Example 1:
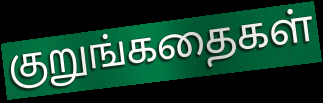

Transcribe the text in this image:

குறுங்கதைகள்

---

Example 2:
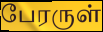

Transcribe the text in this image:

பேரருள்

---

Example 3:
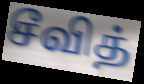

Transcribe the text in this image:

சீவித்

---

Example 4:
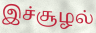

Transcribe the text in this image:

இச்சூழல்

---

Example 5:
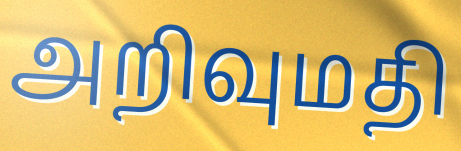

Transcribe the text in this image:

அறிவுமதி